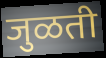
जुळती